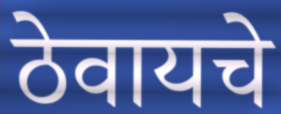
ठेवायचे